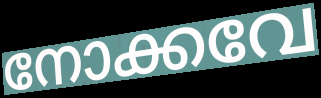
നോക്കവേ